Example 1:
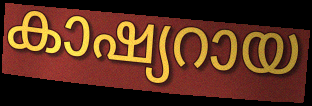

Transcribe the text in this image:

കാഷ്യറായ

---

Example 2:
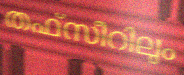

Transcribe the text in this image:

തഫ്സീറിലും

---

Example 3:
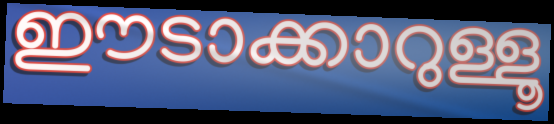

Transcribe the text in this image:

ഈടാക്കാറുള്ളൂ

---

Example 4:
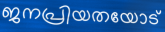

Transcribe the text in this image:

ജനപ്രിയതയോട്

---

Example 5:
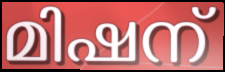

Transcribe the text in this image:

മിഷന്